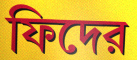
ফিদের